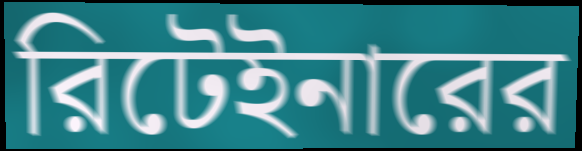
রিটেইনারের